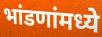
भांडणांमध्ये